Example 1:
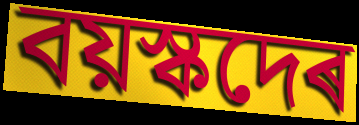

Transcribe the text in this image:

বয়স্কদেৰ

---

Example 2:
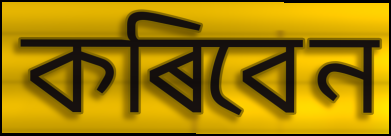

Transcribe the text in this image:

কৰিবেন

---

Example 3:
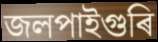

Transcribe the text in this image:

জলপাইগুৰি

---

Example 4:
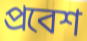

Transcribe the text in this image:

প্ৰবেশ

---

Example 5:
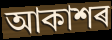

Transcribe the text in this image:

আকাশৰ